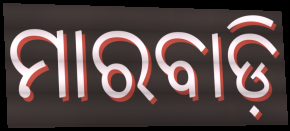
ମାରବାଡ଼ି